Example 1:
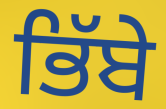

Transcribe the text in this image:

ਭਿੱਬੇ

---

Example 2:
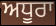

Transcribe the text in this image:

ਅਧੂਰਾ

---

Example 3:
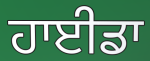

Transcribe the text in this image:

ਹਾਈਡਾ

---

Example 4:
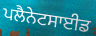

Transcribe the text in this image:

ਪਲੈਨੇਟਸਾਈਡ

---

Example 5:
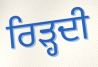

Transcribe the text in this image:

ਰਿੜ੍ਹਦੀ